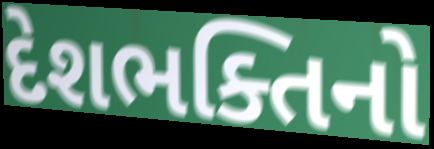
દેશભક્તિનો